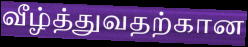
வீழ்த்துவதற்கான